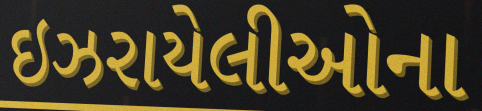
ઇઝરાયેલીઓના